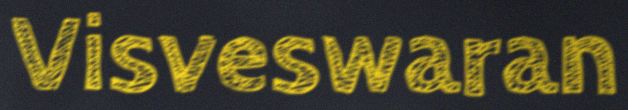
Visveswaran